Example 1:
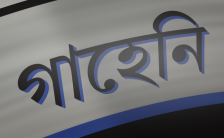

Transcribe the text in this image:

গাহেনি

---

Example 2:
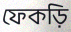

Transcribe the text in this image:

ফেকড়ি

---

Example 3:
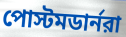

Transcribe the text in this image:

পোস্টমডার্নরা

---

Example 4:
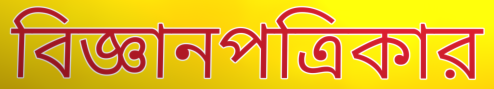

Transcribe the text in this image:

বিজ্ঞানপত্রিকার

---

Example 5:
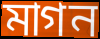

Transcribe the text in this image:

মাগন